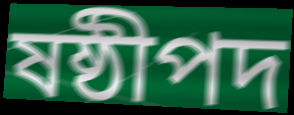
ষষ্ঠীপদ